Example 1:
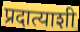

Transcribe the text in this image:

प्रदात्याशी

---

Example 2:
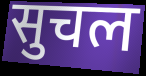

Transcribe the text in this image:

सुचल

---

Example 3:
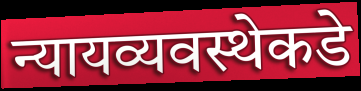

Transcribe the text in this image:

न्यायव्यवस्थेकडे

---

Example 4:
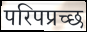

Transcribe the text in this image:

परिपप्रच्छ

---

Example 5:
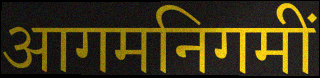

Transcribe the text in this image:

आगमनिगमीं